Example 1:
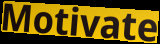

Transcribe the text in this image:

Motivate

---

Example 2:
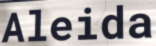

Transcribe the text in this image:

Aleida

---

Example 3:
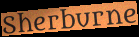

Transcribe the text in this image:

Sherburne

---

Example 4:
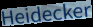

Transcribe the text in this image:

Heidecker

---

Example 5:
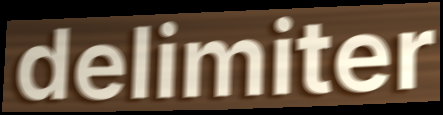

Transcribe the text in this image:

delimiter